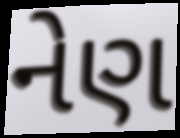
નેણ